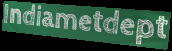
Indiametdept